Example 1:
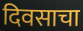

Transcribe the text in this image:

दिवसाचा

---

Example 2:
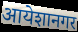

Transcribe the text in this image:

आयेशानगर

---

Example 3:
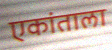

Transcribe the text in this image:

एकांताला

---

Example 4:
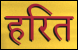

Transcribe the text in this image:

हरित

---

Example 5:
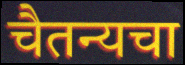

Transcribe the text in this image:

चैतन्यचा